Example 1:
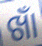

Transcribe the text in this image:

ଖାଁ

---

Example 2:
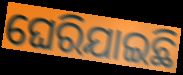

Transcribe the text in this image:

ଘେରିଯାଇଛି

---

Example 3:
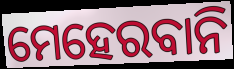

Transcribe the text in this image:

ମେହେରବାନି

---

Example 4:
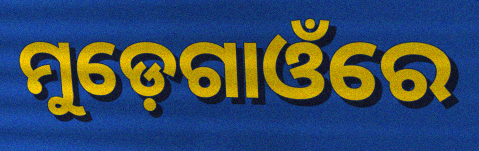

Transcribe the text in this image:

ମୁଡ଼େଗାଓଁରେ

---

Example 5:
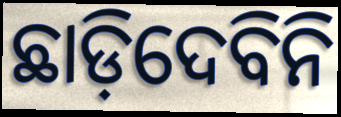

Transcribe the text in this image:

ଛାଡ଼ିଦେବିନି